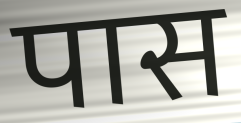
पास